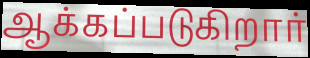
ஆக்கப்படுகிறார்